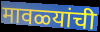
मावळ्यांची